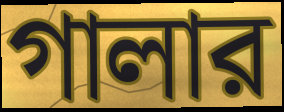
গালার